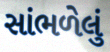
સાંભળેલું